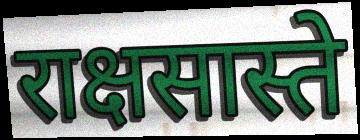
राक्षसास्ते